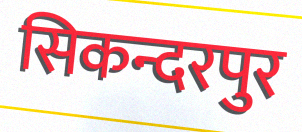
सिकन्दरपुर